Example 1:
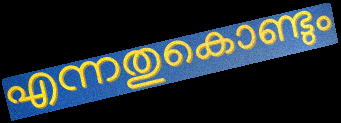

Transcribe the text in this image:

എന്നതുകൊണ്ടും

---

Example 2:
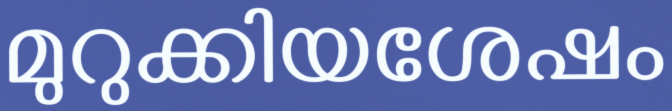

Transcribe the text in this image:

മുറുക്കിയശേഷം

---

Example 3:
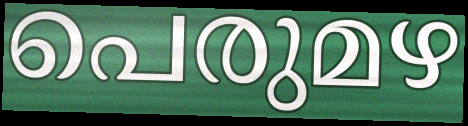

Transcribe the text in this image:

പെരുമഴ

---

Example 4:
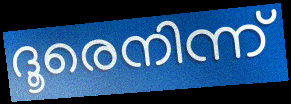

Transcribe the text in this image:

ദൂരെനിന്ന്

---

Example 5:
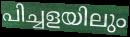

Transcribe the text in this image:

പിച്ചളയിലും